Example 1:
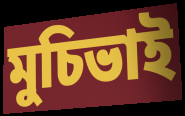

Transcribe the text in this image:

মুচিভাই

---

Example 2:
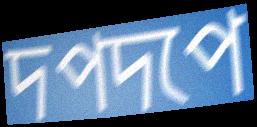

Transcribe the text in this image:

দপদপে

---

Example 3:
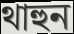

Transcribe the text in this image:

থাহুন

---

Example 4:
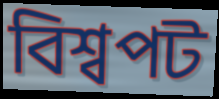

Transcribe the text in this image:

বিশ্বপট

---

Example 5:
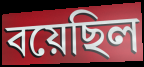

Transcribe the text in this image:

বয়েছিল